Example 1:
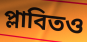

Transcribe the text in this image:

প্লাবিতও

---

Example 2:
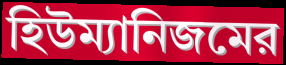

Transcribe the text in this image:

হিউম্যানিজমের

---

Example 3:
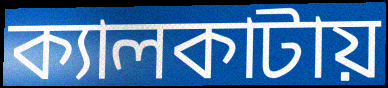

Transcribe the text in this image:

ক্যালকাটায়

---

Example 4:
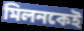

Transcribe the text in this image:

মিলনকেই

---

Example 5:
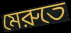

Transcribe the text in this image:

মেরুতে